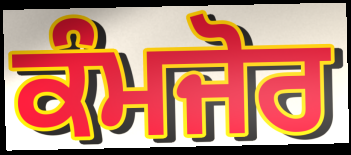
ਕੰਮਜੋਰ